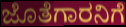
ಜೊತೆಗಾರನಿಗೆ